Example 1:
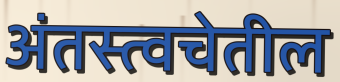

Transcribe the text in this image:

अंतस्त्वचेतील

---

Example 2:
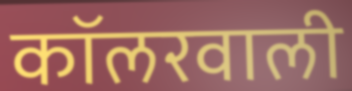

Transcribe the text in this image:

कॉलरवाली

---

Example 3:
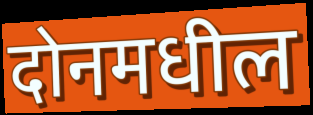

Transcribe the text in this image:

दोनमधील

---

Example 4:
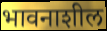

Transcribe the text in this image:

भावनाशील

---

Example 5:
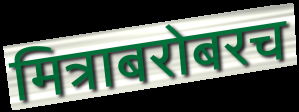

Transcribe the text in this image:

मित्राबरोबरच